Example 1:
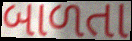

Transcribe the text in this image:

બાળતા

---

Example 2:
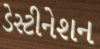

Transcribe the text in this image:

ડેસ્ટીનેશન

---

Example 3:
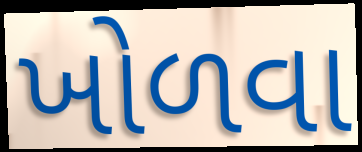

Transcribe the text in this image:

ખોળવા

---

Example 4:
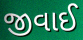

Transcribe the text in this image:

જીવાઈ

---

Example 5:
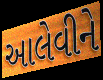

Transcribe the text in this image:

આલેવીને